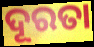
ଦୂରତା